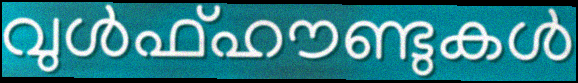
വുൾഫ്ഹൗണ്ടുകൾ